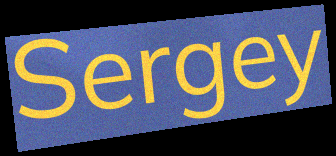
Sergey